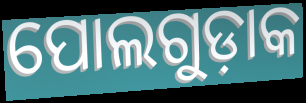
ପୋଲଗୁଡ଼ାକ